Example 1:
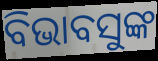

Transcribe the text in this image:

ବିଭାବସୁଙ୍କ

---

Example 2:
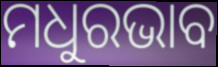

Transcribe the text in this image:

ମଧୁରଭାବ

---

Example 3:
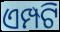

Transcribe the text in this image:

ଏମ୍ପଟି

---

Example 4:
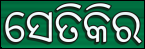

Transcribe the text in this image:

ସେତିକିର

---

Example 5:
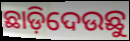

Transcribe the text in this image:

ଛାଡ଼ିଦେଉଛୁ